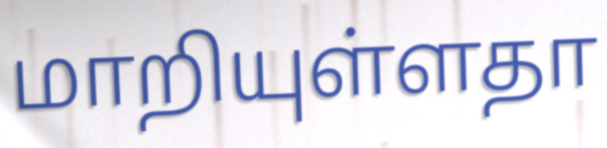
மாறியுள்ளதா